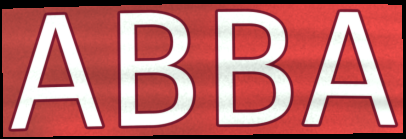
ABBA